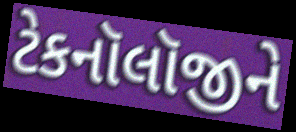
ટેકનૉલૉજીને